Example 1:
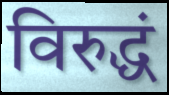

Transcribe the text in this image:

विरुद्धं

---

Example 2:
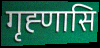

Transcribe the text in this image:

गृह्णासि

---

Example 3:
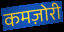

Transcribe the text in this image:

कमज़ोरी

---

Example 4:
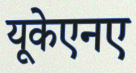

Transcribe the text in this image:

यूकेएनए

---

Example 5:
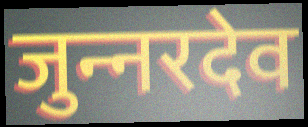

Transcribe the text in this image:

जुन्नरदेव